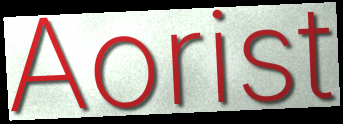
Aorist